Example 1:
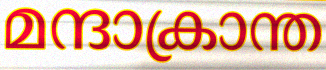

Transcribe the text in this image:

മന്ദാക്രാന്ത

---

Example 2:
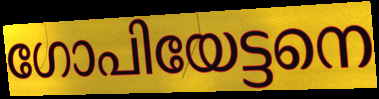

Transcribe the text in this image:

ഗോപിയേട്ടനെ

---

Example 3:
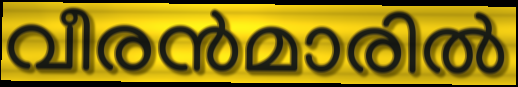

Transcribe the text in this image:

വീരൻമാരിൽ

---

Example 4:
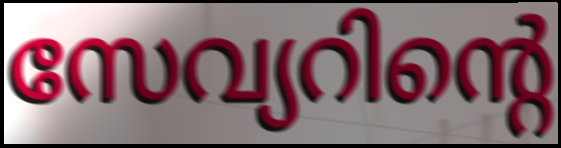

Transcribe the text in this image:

സേവ്യറിന്റെ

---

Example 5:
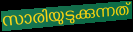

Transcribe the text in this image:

സാരിയുടുക്കുന്നത്